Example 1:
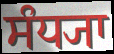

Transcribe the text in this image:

ਸੰਧ੍ਯਾ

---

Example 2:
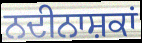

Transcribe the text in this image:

ਨਦੀਨਾਸ਼ਕਾਂ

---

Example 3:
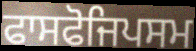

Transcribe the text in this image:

ਫਾਸਫੋਜਿਪਸਮ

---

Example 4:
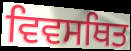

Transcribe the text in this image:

ਵਿਵਸਥਿਤ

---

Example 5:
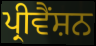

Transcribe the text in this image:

ਪ੍ਰੀਵੈਂਸ਼ਨ